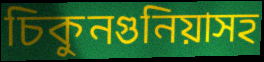
চিকুনগুনিয়াসহ